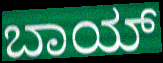
ಬಾಯ್